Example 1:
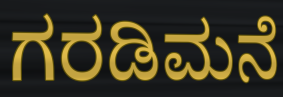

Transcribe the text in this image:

ಗರಡಿಮನೆ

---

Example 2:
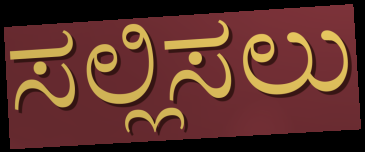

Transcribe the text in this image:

ಸಲ್ಲಿಸಲು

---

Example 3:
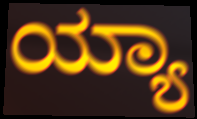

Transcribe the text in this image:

ಯ್ಯಾ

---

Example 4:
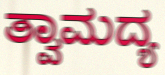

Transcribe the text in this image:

ತ್ವಾಮದ್ಯ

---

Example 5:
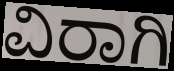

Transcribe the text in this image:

ವಿರಾಗಿ